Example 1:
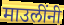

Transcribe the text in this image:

माउलींनी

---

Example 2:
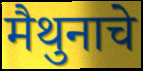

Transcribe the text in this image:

मैथुनाचे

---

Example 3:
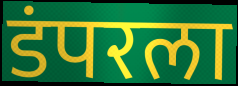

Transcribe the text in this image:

डंपरला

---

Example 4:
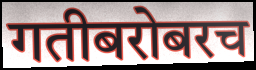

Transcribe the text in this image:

गतीबरोबरच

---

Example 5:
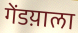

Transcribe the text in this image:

गेंडय़ाला